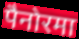
पैनोरमा